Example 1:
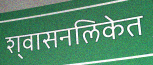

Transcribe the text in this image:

श्वासनलिकेत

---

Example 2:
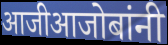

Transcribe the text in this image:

आजीआजोबांनी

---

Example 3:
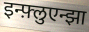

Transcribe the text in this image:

इन्फ़्लुएन्झा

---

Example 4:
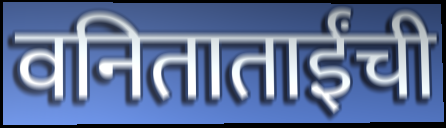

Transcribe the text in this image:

वनिताताईंची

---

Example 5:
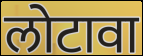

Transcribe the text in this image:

लोटावा